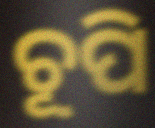
ଚୂପି